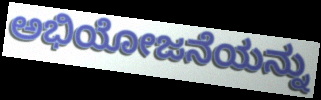
ಅಭಿಯೋಜನೆಯನ್ನು